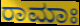
ರಾಮಾಃ